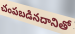
చంపబడినదానితో